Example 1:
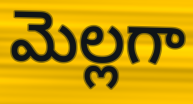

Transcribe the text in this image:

మెల్లగా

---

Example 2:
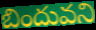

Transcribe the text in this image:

బిందువని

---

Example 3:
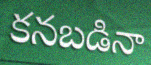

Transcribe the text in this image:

కనబడినా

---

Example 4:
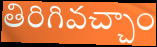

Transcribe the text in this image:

తిరిగివచ్చాం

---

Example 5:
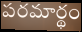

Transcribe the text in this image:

పరమార్థం